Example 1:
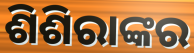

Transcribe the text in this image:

ଶିଶିରାଙ୍କର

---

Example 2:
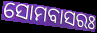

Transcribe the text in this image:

ସୋମବାସରଃ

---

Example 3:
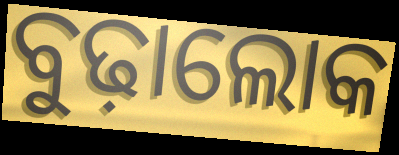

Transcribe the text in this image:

ବୁଢ଼ାଲୋକ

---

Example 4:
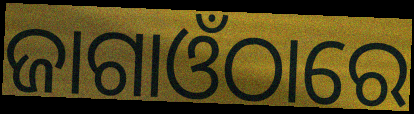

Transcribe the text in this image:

ଜାଗାଓଁଠାରେ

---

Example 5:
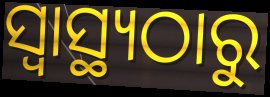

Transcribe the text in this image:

ସ୍ବାସ୍ଥ୍ୟଠାରୁ